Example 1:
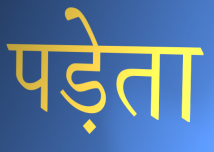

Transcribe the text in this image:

पड़ेता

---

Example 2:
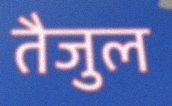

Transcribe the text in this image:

तैजुल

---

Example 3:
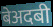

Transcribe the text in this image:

बेअदबी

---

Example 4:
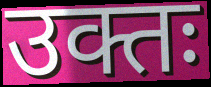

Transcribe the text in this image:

उक्तः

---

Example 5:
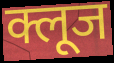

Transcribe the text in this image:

क्लूज